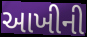
આખીની